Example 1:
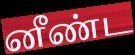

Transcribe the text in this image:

னீண்ட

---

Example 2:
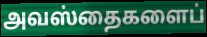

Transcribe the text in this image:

அவஸ்தைகளைப்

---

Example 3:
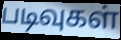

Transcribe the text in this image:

படிவுகள்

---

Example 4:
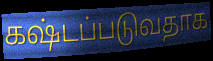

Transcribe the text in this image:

கஷ்டப்படுவதாக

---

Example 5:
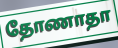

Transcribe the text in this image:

தோணாதா